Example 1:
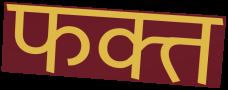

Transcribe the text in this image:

फक्त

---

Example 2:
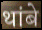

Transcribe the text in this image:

थांबे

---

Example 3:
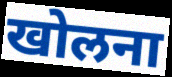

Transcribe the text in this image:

खोलना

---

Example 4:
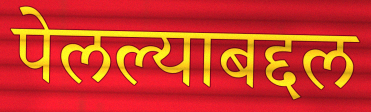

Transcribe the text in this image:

पेलल्याबद्दल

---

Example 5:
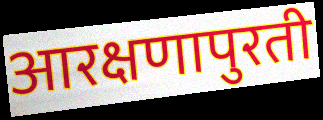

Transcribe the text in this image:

आरक्षणापुरती